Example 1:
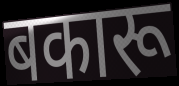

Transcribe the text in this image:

बकारू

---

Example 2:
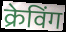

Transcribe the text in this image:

क्रेविंग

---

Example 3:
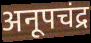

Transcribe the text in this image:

अनूपचंद्र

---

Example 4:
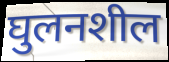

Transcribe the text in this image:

घुलनशील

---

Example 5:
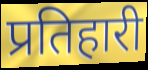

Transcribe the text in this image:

प्रतिहारी